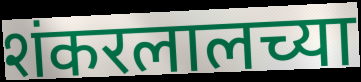
शंकरलालच्या